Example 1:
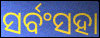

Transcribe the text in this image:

ସର୍ବଂସହା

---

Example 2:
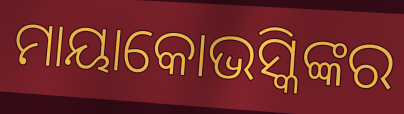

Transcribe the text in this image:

ମାୟାକୋଭସ୍କିଙ୍କର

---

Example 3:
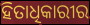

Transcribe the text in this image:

ହିତାଧିକାରୀର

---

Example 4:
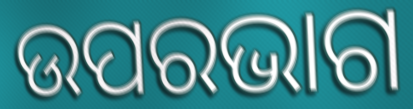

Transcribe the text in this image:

ଉପରଭାଗ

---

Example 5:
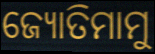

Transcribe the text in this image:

ଜ୍ୟୋତିମାମୁ